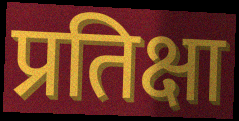
प्रतिक्षा